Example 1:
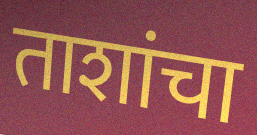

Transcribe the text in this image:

ताशांचा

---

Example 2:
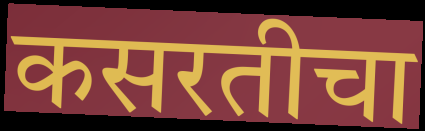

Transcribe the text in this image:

कसरतीचा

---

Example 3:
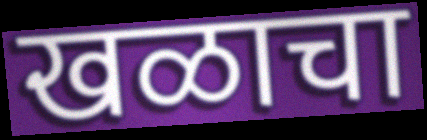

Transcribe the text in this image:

खळाचा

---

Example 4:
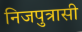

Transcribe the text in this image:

निजपुत्रासी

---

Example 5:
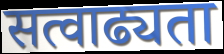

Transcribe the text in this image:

सत्वाढ्यता